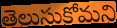
తెలుసుకోమని